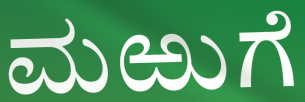
ಮಱುಗೆ